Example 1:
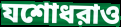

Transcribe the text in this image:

যশোধরাও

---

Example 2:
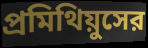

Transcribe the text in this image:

প্রমিথিয়ুসের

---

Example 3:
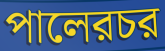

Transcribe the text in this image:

পালেরচর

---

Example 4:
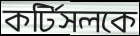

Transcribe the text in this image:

কর্টিসলকে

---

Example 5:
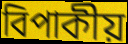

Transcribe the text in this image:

বিপাকীয়